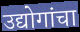
उद्योगांचा